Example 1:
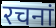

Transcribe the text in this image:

रचनां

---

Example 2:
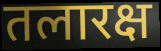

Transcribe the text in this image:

तलारक्ष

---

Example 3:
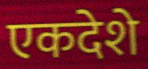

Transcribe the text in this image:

एकदेशे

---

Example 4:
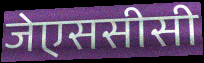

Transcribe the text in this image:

जेएससीसी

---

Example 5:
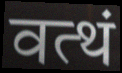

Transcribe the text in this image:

वत्थं